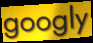
googly